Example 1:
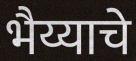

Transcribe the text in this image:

भैय्याचे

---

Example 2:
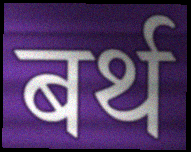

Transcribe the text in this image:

बर्थ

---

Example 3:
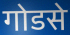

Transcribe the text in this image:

गोडसे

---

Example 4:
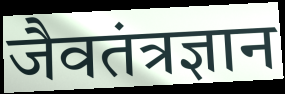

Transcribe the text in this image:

जैवतंत्रज्ञान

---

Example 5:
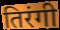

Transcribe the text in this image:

तिरंगी